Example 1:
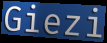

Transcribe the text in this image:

Giezi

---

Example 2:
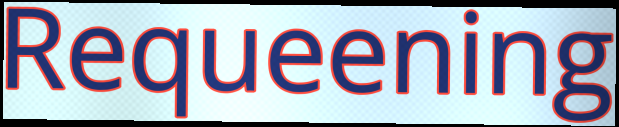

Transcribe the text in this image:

Requeening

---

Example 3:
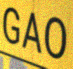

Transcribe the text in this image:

GAO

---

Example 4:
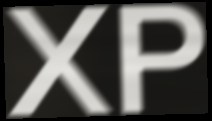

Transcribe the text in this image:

XP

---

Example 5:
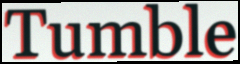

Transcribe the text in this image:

Tumble